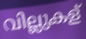
വില്ലുകള്